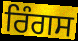
ਰਿੰਗਸ